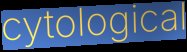
cytological